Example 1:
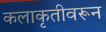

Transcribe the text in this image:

कलाकृतीवरून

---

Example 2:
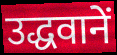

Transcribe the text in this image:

उद्धवानें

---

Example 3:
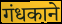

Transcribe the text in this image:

गंधकाने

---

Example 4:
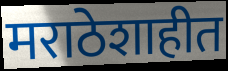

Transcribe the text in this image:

मराठेशाहीत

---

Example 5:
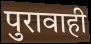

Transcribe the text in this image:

पुरावाही